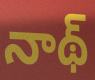
నాథ్